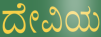
ದೇವಿಯ